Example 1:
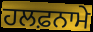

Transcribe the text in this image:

ਹਲਫ਼ਨਾਮੇ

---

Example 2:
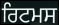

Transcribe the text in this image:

ਰਿਟਮਸ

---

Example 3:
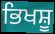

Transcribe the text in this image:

ਭਿਖਸ਼ੂ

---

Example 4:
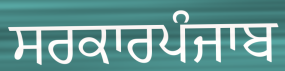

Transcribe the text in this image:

ਸਰਕਾਰਪੰਜਾਬ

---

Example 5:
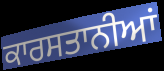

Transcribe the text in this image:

ਕਾਰਸਤਾਨੀਆਂ